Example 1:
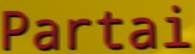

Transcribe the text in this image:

Partai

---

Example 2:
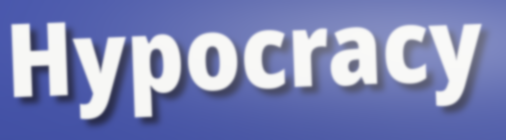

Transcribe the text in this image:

Hypocracy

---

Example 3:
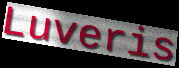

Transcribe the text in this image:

Luveris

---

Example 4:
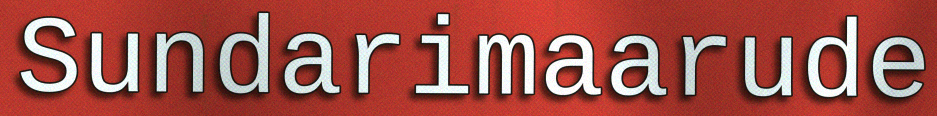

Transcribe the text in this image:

Sundarimaarude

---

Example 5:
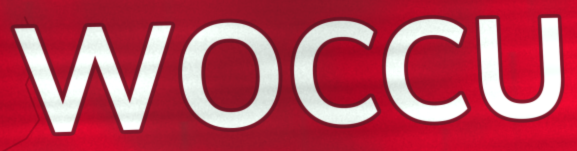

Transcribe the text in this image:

WOCCU